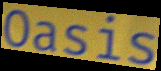
Oasis